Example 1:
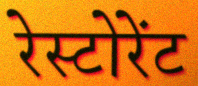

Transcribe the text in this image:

रेस्टोरेंट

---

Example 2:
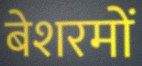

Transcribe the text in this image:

बेशरमों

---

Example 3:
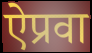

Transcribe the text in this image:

ऐप्रवा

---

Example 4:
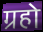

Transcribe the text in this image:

ग्रहो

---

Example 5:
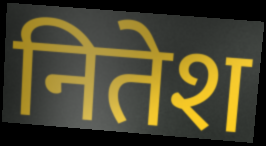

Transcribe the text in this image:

नितेश